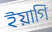
ইয়াগি